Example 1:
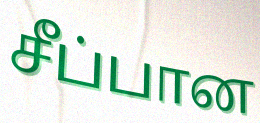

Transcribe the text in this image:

சீப்பான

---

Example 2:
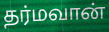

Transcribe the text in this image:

தர்மவான்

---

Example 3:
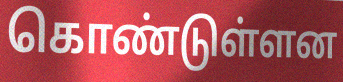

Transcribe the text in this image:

கொண்டுள்ளன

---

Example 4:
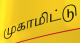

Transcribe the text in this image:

முகாமிட்டு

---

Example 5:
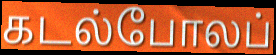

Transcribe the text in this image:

கடல்போலப்